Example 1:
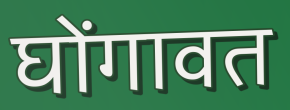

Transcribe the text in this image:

घोंगावत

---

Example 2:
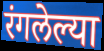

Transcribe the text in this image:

रंगलेल्या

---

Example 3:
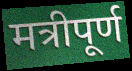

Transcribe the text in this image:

मत्रीपूर्ण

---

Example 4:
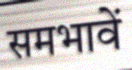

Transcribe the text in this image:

समभावें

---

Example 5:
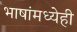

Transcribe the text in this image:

भाषांमध्येही